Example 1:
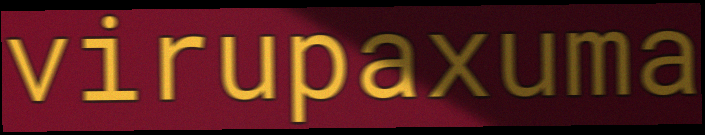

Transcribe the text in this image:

virupaxuma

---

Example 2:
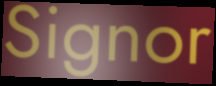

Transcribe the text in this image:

Signor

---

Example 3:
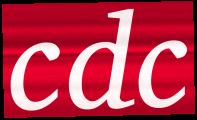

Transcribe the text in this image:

cdc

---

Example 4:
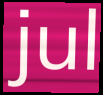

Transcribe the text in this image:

jul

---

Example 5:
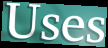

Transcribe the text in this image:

Uses